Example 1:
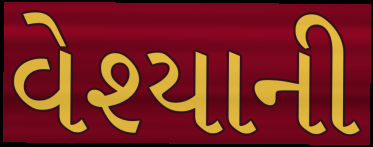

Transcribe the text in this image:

વેશ્યાની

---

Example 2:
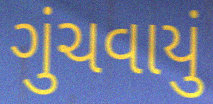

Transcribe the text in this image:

ગુંચવાયું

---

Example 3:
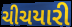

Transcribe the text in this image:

ચીચયારી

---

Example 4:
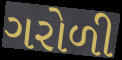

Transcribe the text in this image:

ગરોળી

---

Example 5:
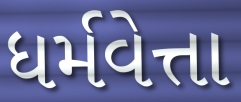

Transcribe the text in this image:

ધર્મવેત્તા